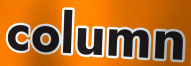
column